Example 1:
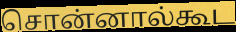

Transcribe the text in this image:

சொன்னால்கூட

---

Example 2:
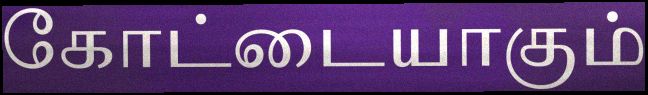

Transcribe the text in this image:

கோட்டையாகும்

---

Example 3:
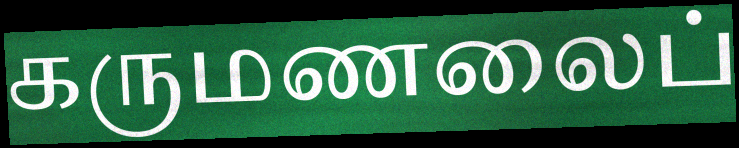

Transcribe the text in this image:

கருமணலைப்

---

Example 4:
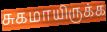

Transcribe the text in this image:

சுகமாயிருக்க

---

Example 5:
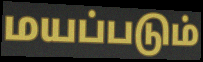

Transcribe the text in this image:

மயப்படும்